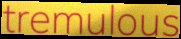
tremulous